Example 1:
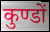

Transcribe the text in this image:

कुण्डों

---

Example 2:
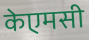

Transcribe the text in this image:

केएमसी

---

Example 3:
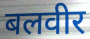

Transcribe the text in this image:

बलवीर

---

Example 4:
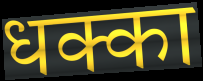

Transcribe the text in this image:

धक्का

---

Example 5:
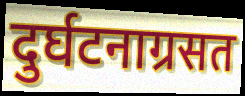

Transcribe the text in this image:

दुर्घटनाग्रसत